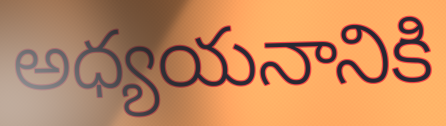
అధ్యయనానికి